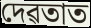
দেৱতাত